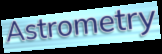
Astrometry